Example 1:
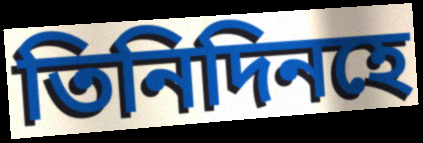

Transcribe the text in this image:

তিনিদিনহে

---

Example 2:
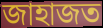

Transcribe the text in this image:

জাহাজত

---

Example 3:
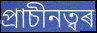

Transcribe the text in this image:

প্ৰাচীনত্বৰ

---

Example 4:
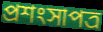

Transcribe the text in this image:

প্ৰশংসাপত্ৰ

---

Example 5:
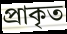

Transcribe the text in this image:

প্ৰাকৃত